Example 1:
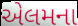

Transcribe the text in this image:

એલમના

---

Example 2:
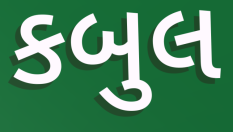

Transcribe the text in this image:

કબુલ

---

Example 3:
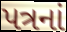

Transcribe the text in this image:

પત્રનાં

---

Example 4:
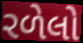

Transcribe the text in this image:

રળેલો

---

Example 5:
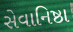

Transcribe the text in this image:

સેવાનિષ્ઠા